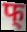
फ्